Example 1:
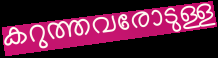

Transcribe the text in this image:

കറുത്തവരോടുള്ള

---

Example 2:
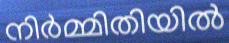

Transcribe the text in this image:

നിർമ്മിതിയിൽ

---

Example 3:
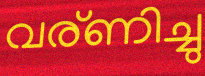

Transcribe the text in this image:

വര്ണിച്ചു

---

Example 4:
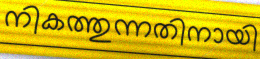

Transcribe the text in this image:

നികത്തുന്നതിനായി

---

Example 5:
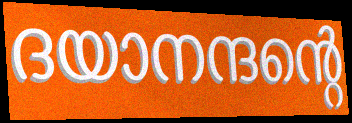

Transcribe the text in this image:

ദയാനന്ദന്റെ